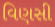
વિણસી